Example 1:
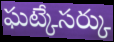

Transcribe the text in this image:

ఘట్కేసర్కు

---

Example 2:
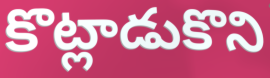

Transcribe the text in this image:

కొట్లాడుకొని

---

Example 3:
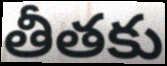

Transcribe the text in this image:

తీతకు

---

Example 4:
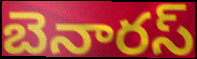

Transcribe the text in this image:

బెనారస్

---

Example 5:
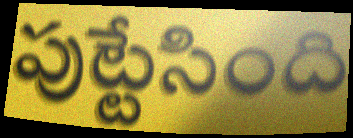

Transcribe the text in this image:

పుట్టేసింది